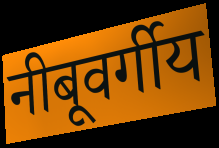
नीबूवर्गीय